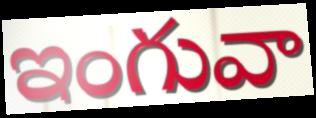
ఇంగువా